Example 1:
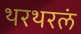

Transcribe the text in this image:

थरथरलं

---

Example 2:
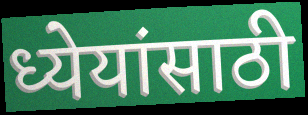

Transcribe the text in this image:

ध्येयांसाठी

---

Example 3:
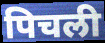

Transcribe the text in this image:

पिचली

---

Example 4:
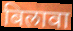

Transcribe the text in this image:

बिलावा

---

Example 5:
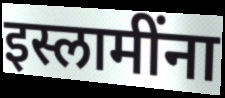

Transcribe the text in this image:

इस्लामींना